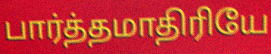
பார்த்தமாதிரியே